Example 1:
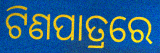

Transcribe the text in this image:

ଟିଣପାତ୍ରରେ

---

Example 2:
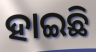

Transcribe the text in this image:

ହାଇଛି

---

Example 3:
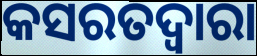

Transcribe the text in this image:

କସରତଦ୍ୱାରା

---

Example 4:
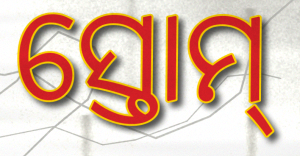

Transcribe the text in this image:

ସ୍ତୋମ୍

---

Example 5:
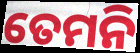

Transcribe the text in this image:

ତେମନି